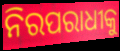
ନିରପରାଧୀକୁ